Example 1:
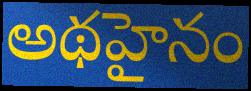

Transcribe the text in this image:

అథహైనం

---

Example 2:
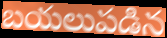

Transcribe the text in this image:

బయలుపడిన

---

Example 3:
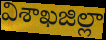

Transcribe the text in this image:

విశాఖజిల్లా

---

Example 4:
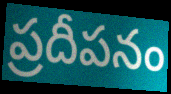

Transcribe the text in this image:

ప్రదీపనం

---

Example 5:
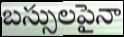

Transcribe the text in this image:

బస్సులపైనా